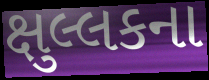
ક્ષુલ્લકના